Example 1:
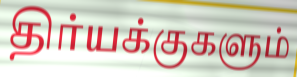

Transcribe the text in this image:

திர்யக்குகளும்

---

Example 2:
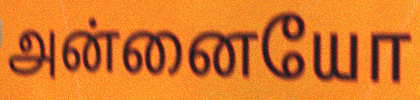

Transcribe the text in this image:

அன்னையோ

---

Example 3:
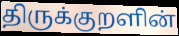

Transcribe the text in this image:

திருக்குறளின்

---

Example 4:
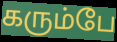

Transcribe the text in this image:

கரும்பே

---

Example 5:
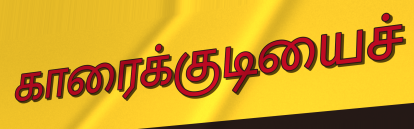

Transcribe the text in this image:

காரைக்குடியைச்